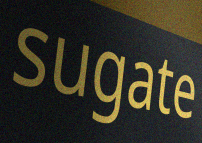
sugate